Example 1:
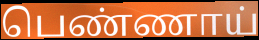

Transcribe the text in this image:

பெண்ணாய்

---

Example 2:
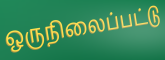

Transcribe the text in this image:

ஒருநிலைப்பட்டு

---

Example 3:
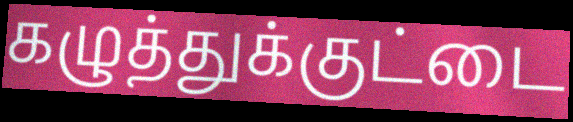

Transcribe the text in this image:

கழுத்துக்குட்டை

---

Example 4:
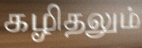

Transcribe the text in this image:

கழிதலும்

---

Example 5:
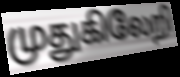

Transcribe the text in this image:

முதுகிலேறி